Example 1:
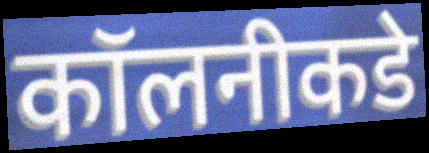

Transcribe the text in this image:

कॉलनीकडे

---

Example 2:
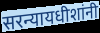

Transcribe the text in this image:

सरन्यायधीशांनी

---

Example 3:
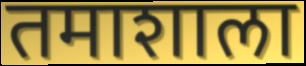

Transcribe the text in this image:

तमाशाला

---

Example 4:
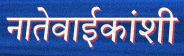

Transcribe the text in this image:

नातेवाईकांशी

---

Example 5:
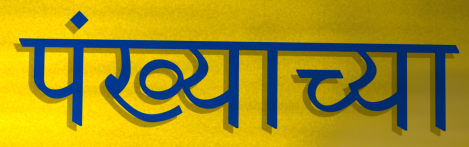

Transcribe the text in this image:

पंख्याच्या